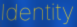
Identity